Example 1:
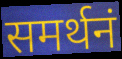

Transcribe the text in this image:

समर्थनं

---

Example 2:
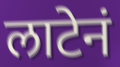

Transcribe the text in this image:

लाटेनं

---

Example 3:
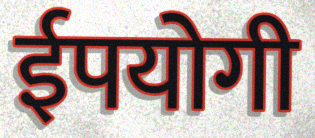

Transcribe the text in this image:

ईपयोगी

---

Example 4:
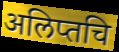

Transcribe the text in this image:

अलिप्तचि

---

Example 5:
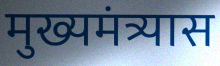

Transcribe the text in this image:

मुख्यमंत्र्यास